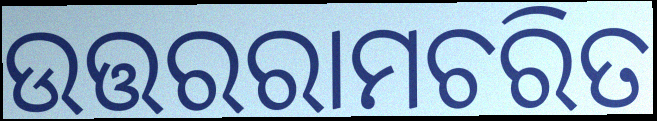
ଉତ୍ତରରାମଚରିତ